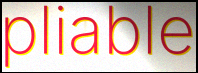
pliable